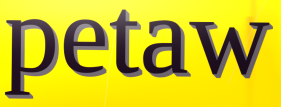
petaw